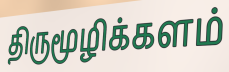
திருமூழிக்களம்